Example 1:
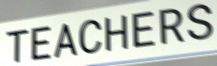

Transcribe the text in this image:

TEACHERS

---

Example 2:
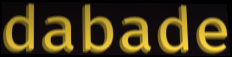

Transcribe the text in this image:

dabade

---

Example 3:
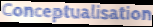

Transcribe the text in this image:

Conceptualisation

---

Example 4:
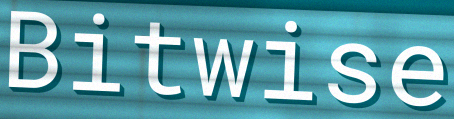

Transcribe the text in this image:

Bitwise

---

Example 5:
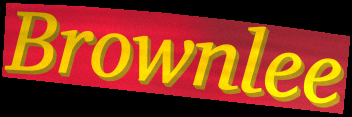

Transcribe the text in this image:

Brownlee